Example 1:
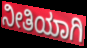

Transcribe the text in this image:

ನೀತಿಯಾಗಿ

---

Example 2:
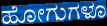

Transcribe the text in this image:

ಹೋಗುಗಳೂ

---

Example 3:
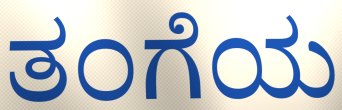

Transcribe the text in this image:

ತಂಗೆಯ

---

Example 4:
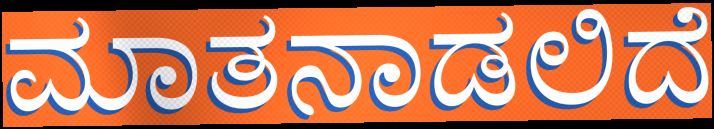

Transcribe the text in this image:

ಮಾತನಾಡಲಿದೆ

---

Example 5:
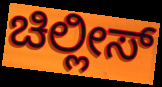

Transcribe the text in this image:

ಚಿಲ್ಲೀಸ್